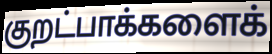
குறட்பாக்களைக்